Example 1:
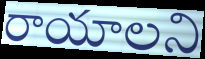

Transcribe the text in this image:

రాయాలని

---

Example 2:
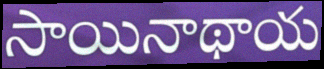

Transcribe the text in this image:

సాయినాథాయ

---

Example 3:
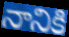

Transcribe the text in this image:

నానికి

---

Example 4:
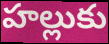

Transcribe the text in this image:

హల్లుకు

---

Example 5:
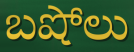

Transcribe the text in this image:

బషోలు